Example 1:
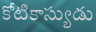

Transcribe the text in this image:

కోటికాస్యుడు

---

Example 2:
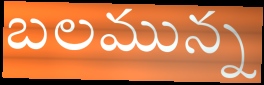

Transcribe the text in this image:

బలమున్న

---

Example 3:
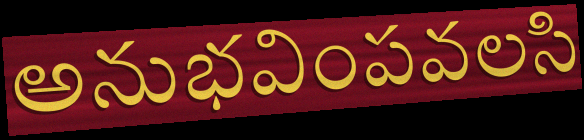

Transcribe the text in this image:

అనుభవింపవలసి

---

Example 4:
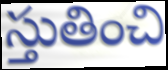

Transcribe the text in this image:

స్తుతించి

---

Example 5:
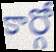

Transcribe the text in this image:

కార్గో